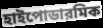
হাইপোডারমিক